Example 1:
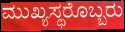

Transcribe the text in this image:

ಮುಖ್ಯಸ್ಥರೊಬ್ಬರು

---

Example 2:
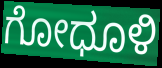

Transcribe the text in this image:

ಗೋಧೂಳಿ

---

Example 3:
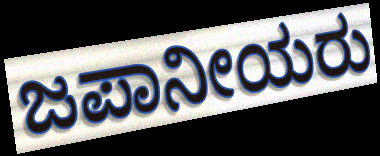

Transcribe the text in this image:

ಜಪಾನೀಯರು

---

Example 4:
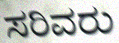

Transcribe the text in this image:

ಸರಿವರು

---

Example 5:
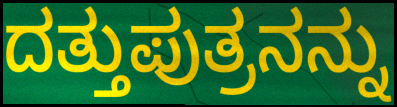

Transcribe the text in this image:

ದತ್ತುಪುತ್ರನನ್ನು